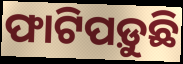
ଫାଟିପଡ଼ୁଛି